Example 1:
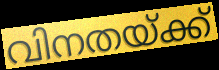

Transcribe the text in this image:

വിനതയ്ക്ക്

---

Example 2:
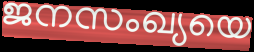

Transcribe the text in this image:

ജനസംഖ്യയെ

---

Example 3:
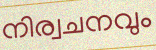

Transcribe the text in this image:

നിര്വചനവും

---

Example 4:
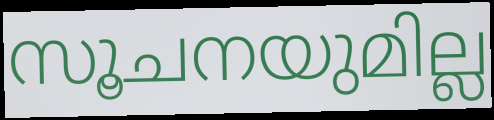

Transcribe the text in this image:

സൂചനയുമില്ല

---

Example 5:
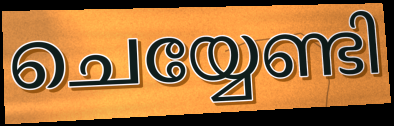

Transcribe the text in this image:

ചെയ്യേണ്ടി